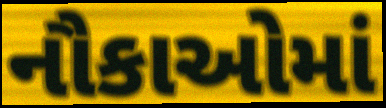
નૌકાઓમાં